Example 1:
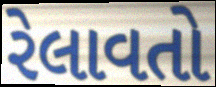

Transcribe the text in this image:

રેલાવતો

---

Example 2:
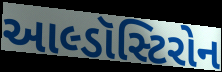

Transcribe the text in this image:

આલ્ડૉસ્ટિરોન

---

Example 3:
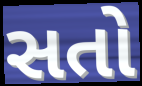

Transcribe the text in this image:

સતો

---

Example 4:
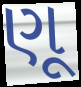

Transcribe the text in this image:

ણૂ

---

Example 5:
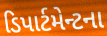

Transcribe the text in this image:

ડિપાર્ટમેન્ટના